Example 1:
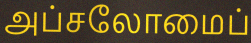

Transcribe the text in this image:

அப்சலோமைப்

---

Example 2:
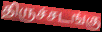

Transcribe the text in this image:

திருச்சடங்கு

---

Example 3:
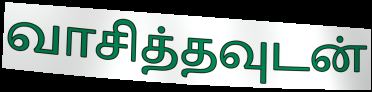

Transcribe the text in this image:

வாசித்தவுடன்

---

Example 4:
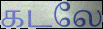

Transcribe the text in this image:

கடலே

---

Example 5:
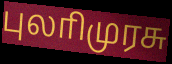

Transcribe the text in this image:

புலரிமுரசு